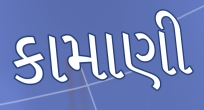
કામાણી